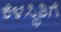
ಕೆಳಸ್ಥಿತಿಗೆ